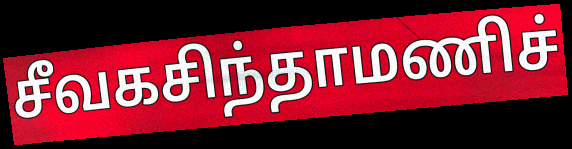
சீவகசிந்தாமணிச்